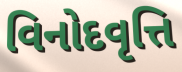
વિનોદવૃત્તિ